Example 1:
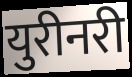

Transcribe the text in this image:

युरीनरी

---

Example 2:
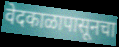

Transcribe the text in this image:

वेदकाळापासूनचा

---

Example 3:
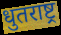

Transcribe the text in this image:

धुतराष्ट्र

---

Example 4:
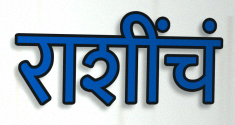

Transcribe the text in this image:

राशींचं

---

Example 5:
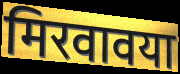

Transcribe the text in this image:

मिरवावया